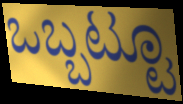
ಒಬ್ಬಟ್ಟೂ